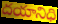
దయానిధి